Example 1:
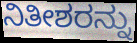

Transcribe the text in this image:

ನಿತೀಶರನ್ನು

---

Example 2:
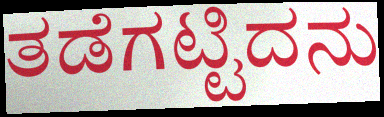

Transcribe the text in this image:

ತಡೆಗಟ್ಟಿದನು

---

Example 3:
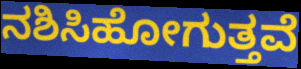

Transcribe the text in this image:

ನಶಿಸಿಹೋಗುತ್ತವೆ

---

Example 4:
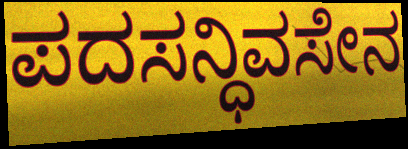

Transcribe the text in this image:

ಪದಸನ್ಧಿವಸೇನ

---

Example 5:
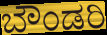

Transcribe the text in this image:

ಬೌಂಡರಿ